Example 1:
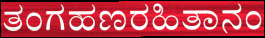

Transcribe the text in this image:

ತಂಗಹಣರಹಿತಾನಂ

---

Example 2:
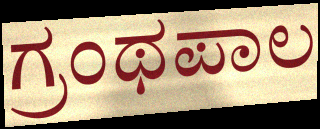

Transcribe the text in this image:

ಗ್ರಂಥಪಾಲ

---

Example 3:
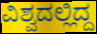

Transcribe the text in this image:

ವಿಶ್ವದಲ್ಲಿದ್ದ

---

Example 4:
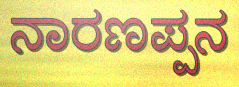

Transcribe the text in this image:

ನಾರಣಪ್ಪನ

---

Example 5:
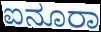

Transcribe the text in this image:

ಐನೂರಾ